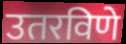
उतरविणे